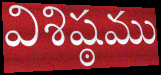
విశిష్ఠము